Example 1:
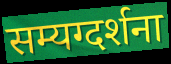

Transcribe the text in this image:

सम्यग्दर्शना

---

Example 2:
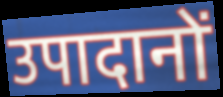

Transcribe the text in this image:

उपादानों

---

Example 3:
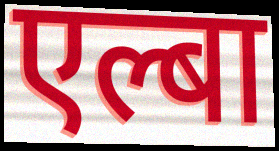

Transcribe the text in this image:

एल्बा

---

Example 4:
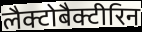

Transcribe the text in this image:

लैक्टोबैक्टीरिन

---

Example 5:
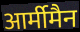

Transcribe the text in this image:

आर्मीमैन